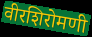
वीरशिरोमणी